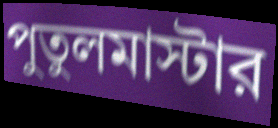
পুতুলমাস্টার